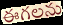
ఈగలను